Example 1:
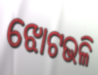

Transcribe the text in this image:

ଝୋଟଭଳି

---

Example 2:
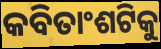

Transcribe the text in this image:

କବିତାଂଶଟିକୁ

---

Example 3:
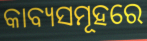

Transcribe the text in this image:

କାବ୍ୟସମୂହରେ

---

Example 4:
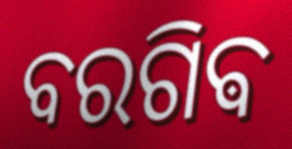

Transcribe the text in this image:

ବରଗିଵ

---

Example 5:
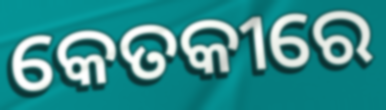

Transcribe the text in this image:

କେତକୀରେ